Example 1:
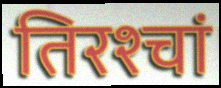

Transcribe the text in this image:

तिरश्चां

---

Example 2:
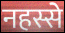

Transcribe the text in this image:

नहस्से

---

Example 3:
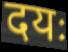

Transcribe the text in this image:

दयः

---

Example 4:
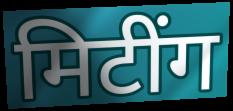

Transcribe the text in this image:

मिटींग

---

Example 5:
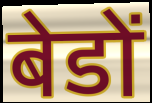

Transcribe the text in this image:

बेडों